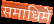
समाधिमें